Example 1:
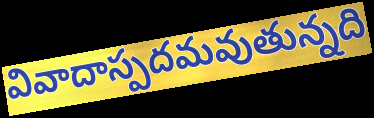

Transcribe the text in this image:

వివాదాస్పదమవుతున్నది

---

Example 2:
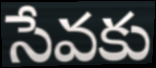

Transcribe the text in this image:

సేవకు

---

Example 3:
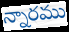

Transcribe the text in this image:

న్నారము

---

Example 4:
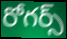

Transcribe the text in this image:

రోగర్స్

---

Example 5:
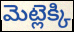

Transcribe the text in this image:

మెట్లెక్కి